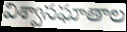
విశ్వాసఘాతాల